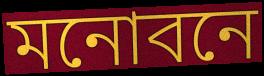
মনোবনে